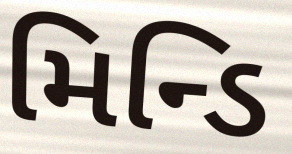
મિન્ડિ